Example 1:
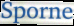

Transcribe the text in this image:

Sporne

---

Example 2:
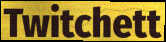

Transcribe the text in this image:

Twitchett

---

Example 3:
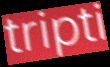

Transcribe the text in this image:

tripti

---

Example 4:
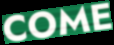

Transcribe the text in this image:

COME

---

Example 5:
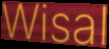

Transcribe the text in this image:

Wisal